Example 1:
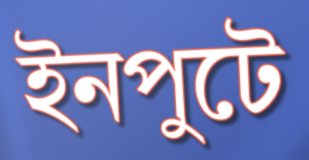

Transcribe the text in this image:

ইনপুটে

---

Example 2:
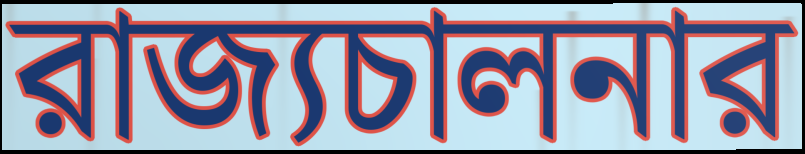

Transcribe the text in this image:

রাজ্যচালনার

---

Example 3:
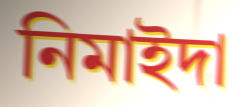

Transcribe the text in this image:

নিমাইদা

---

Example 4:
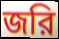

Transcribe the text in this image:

জরি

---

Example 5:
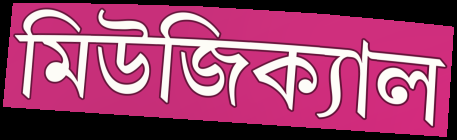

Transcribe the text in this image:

মিউজিক্যাল